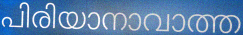
പിരിയാനാവാത്ത